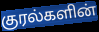
குரல்களின்